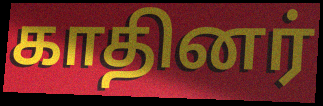
காதினர்